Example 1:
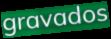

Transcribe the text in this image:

gravados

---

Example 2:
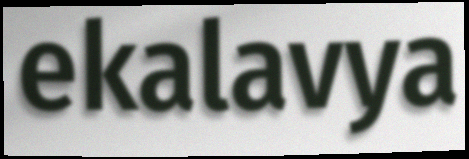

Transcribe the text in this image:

ekalavya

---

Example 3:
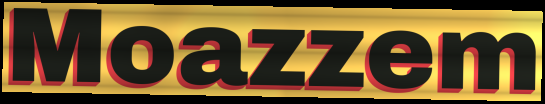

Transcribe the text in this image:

Moazzem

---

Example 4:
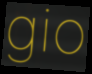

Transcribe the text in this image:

gio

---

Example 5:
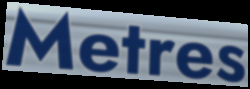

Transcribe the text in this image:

Metres